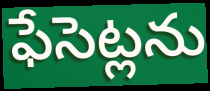
ఫేసెట్లను